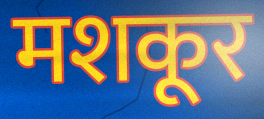
मशकूर